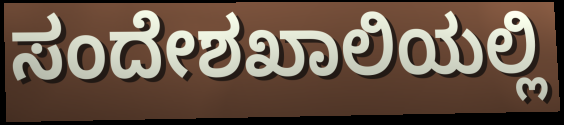
ಸಂದೇಶಖಾಲಿಯಲ್ಲಿ